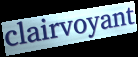
clairvoyant